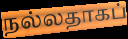
நல்லதாகப்